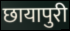
छायापुरी